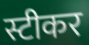
स्टीकर